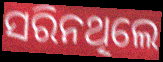
ସରିନଥିଲେ